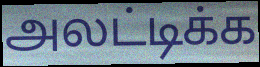
அலட்டிக்க